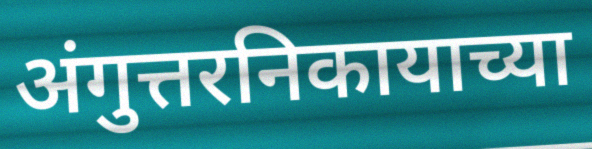
अंगुत्तरनिकायाच्या